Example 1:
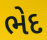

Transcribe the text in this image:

ભેદ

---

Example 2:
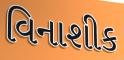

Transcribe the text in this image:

વિનાશીક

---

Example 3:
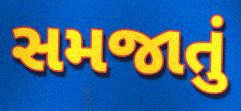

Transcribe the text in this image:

સમજાતું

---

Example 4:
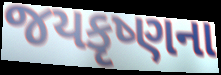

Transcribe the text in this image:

જયકૃષ્ણના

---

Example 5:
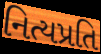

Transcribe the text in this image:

નિત્યપ્રતિ